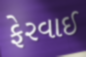
ફેરવાઈ